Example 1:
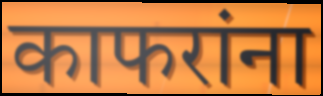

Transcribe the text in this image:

काफरांना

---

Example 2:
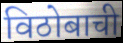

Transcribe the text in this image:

विठोबाची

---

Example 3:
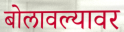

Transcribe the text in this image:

बोलावल्यावर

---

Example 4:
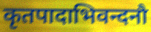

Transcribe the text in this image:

कृतपादाभिवन्दनौ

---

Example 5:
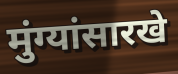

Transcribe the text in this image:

मुंग्यांसारखे